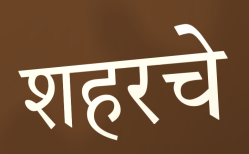
शहरचे